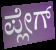
ಪ್ಲೇಗ್